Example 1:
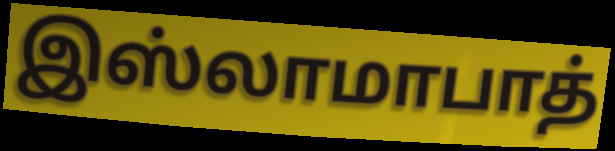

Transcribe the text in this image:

இஸ்லாமாபாத்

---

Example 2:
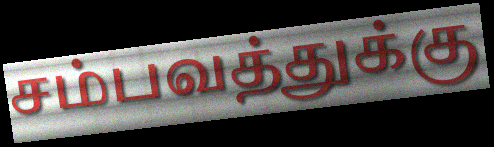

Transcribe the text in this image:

சம்பவத்துக்கு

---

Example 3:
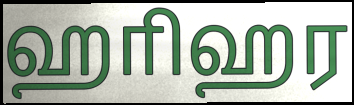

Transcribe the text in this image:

ஹரிஹர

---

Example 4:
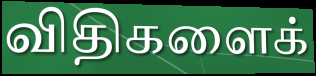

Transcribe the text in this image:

விதிகளைக்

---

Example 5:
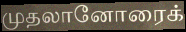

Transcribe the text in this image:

முதலானோரைக்